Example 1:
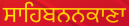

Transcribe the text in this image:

ਸਾਹਿਬਨਨਕਾਣਾ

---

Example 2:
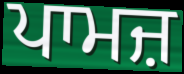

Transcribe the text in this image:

ਪਾਮਜ਼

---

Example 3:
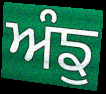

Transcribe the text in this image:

ਅੰਙੁ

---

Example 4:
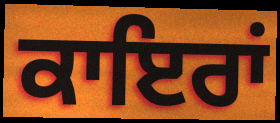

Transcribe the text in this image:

ਕਾਇਰਾਂ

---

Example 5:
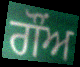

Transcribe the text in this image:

ਗੌਂਅ